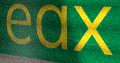
eax